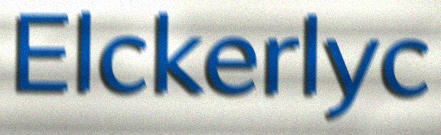
Elckerlyc